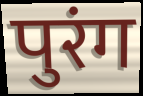
पुरंग